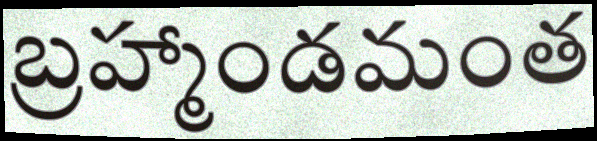
బ్రహ్మాండమంత